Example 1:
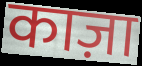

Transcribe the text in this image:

काज़ा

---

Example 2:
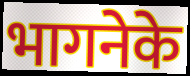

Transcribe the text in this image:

भागनेके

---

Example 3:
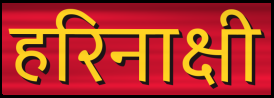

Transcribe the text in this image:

हरिनाक्षी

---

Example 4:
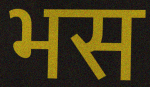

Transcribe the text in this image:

भस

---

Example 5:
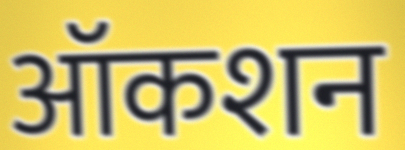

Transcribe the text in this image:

ऑकशन